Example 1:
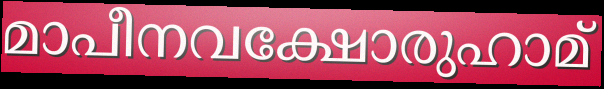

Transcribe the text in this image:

മാപീനവക്ഷോരുഹാമ്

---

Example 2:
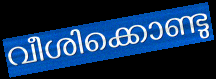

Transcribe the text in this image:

വീശിക്കൊണ്ടു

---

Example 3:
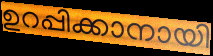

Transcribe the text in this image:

ഉറപ്പിക്കാനായി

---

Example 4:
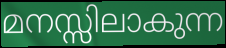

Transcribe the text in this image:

മനസ്സിലാകുന്ന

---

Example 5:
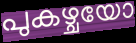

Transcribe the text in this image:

പുകഴ്ചയോ